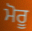
ਮੋਰੂ